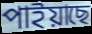
পাইয়াছে